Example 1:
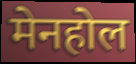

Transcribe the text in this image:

मेनहोल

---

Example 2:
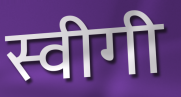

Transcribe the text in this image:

स्वीगी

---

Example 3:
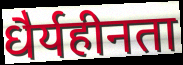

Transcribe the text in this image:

धैर्यहीनता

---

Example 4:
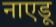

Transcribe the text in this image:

नाएडू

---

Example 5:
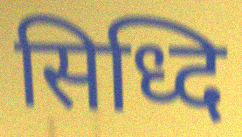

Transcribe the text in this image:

सिध्दि